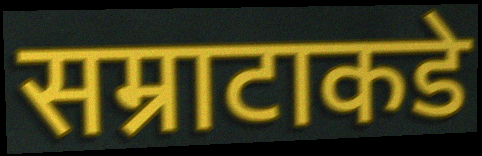
सम्राटाकडे